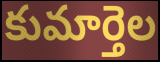
కుమార్తెల